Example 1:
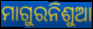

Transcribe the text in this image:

ମାଗୁରନିଶୁଆ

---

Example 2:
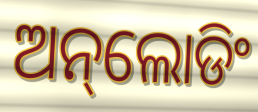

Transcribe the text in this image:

ଅନ୍‌ଲୋଡିଂ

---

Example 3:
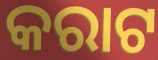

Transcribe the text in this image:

କରାଟ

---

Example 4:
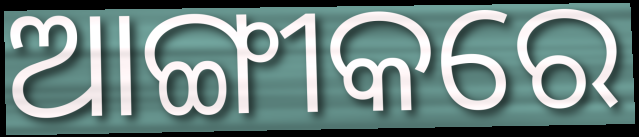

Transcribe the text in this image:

ଆଙ୍ଗୀକରେ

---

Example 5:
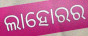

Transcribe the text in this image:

ଲାହୋରର